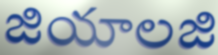
జియాలజి